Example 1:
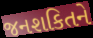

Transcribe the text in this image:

જનશકિતને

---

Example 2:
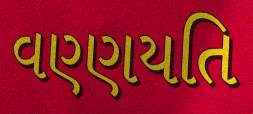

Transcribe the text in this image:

વણ્ણયતિ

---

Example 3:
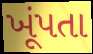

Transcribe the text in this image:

ખૂંપતા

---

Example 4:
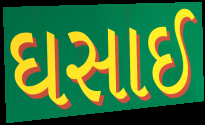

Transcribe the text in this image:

ઘસાઈ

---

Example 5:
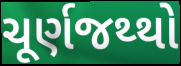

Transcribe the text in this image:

ચૂર્ણજથ્થો